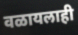
वळायलाही